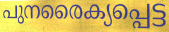
പുനരൈക്യപ്പെട്ട